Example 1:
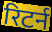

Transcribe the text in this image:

रिटर्न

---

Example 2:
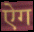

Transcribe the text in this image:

ऐग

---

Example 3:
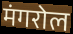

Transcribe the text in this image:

मंगरोल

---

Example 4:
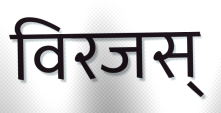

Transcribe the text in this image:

विरजस्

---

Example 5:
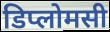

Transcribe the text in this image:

डिप्लोमसी